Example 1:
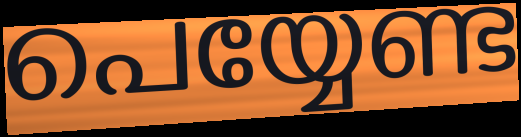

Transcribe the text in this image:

പെയ്യേണ്ട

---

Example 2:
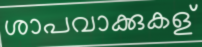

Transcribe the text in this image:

ശാപവാക്കുകള്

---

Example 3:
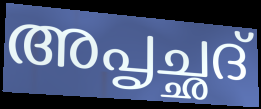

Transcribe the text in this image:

അപൃച്ഛദ്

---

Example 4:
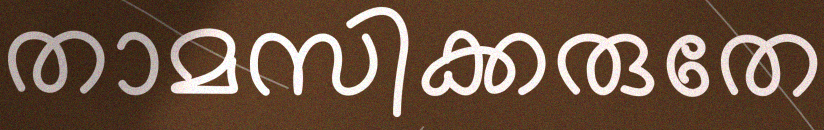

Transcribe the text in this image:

താമസിക്കരുതേ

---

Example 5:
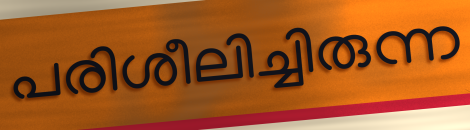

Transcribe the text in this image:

പരിശീലിച്ചിരുന്ന